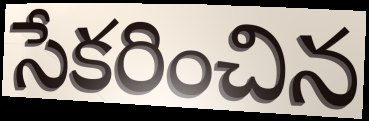
సేకరించిన